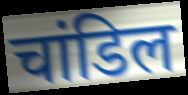
चांडिल